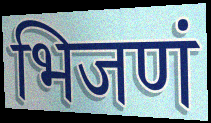
भिजणं